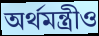
অর্থমন্ত্রীও